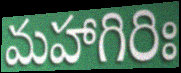
మహాగిరిః